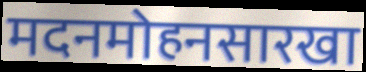
मदनमोहनसारखा